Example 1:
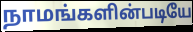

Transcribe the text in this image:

நாமங்களின்படியே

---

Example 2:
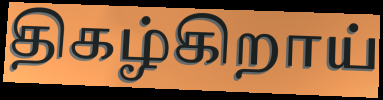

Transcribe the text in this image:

திகழ்கிறாய்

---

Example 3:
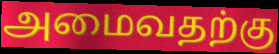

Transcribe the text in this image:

அமைவதற்கு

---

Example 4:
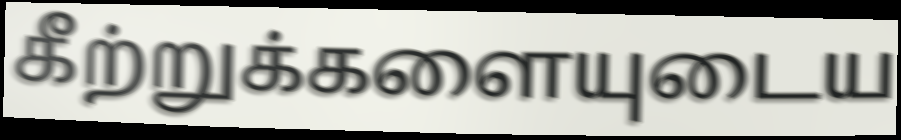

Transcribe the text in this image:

கீற்றுக்களையுடைய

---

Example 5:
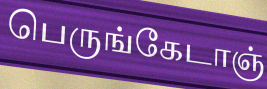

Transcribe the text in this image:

பெருங்கேடாஞ்